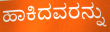
ಹಾಕಿದವರನ್ನು